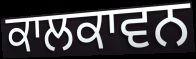
ਕਾਲਕਾਵਨ